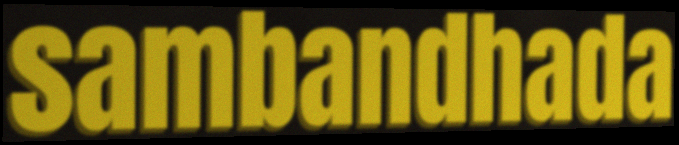
sambandhada